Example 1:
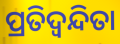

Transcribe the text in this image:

ପ୍ରତିଦ୍ୱନ୍ଦିତା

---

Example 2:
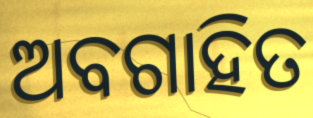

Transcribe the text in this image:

ଅବଗାହିତ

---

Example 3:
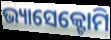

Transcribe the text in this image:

ଭ୍ୟାସେକ୍ଟୋମି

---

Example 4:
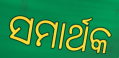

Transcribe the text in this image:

ସମାର୍ଥକ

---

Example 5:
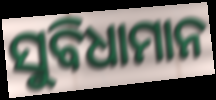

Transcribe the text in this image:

ସୁବିଧାମାନ